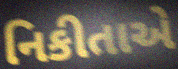
નિકીતાએ